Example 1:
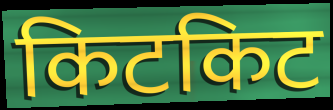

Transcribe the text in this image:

किटकिट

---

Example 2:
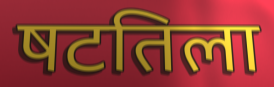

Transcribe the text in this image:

षटतिला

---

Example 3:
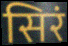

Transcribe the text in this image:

सिरं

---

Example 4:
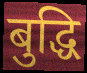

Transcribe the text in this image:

बुद्धि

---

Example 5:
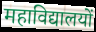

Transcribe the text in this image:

महाविद्यालयों